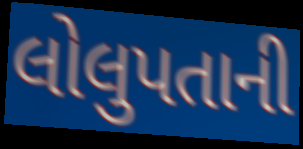
લોલુપતાની